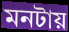
মনটায়